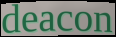
deacon